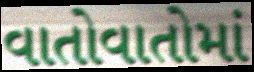
વાતોવાતોમાં